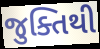
જુક્તિથી